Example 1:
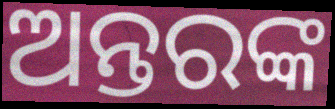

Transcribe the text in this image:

ଅନ୍ତରଙ୍କ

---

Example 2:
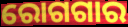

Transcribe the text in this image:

ରୋଗଗାର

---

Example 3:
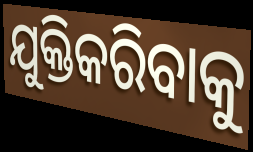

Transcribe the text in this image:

ଯୁକ୍ତିକରିବାକୁ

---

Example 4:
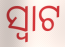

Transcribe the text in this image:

ସ୍ୱାଟ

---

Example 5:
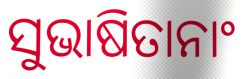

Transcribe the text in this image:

ସୁଭାଷିତାନାଂ